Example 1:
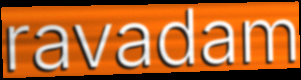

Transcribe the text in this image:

ravadam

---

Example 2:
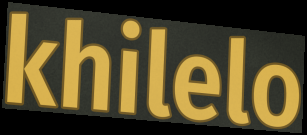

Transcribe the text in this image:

khilelo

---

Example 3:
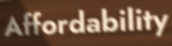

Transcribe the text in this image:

Affordability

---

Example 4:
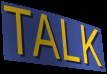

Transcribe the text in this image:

TALK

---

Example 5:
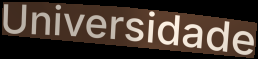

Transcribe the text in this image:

Universidade